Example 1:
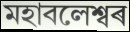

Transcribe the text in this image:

মহাবলেশ্বৰ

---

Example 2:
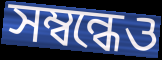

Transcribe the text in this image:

সম্বন্ধেও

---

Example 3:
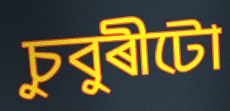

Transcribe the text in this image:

চুবুৰীটো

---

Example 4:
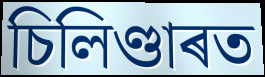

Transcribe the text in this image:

চিলিণ্ডাৰত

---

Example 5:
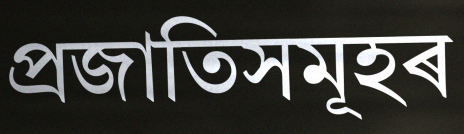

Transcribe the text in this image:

প্ৰজাতিসমূহৰ